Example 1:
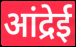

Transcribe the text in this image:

आंद्रेई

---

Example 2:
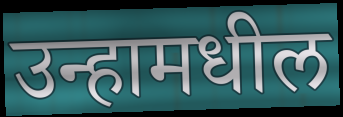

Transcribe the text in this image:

उन्हामधील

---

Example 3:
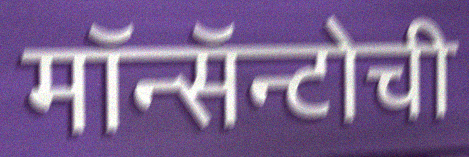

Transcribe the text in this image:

मॉन्सॅन्टोची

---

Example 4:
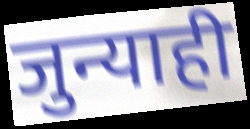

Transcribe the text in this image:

जुन्याही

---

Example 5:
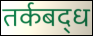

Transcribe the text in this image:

तर्कबद्ध